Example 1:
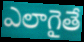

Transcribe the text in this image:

ఎలాగైతే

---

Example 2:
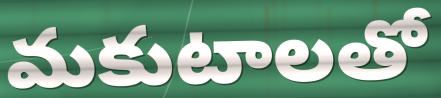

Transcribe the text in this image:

మకుటాలతో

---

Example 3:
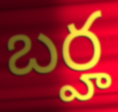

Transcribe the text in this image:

బర్హ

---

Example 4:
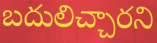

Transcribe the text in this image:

బదులిచ్చారని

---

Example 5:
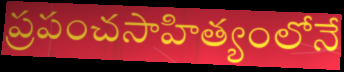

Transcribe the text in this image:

ప్రపంచసాహిత్యంలోనే